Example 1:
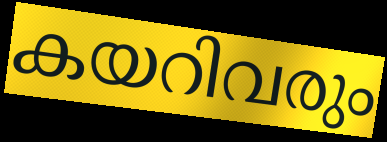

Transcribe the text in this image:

കയറിവരും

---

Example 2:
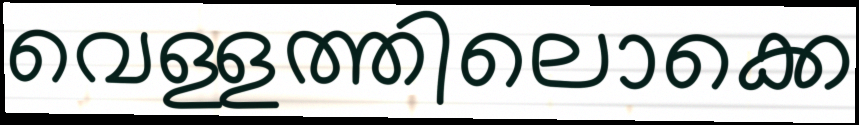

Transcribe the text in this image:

വെള്ളത്തിലൊക്കെ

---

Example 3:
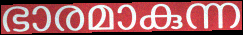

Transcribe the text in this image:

ഭാരമാകുന്ന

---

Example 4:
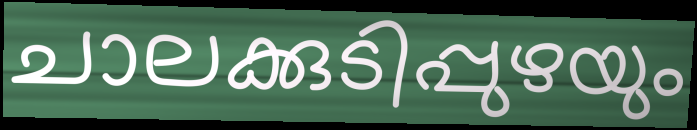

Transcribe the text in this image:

ചാലക്കുടിപ്പുഴയും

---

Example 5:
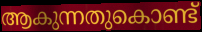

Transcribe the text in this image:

ആകുന്നതുകൊണ്ട്